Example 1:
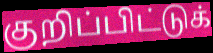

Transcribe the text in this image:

குறிப்பிட்டுக்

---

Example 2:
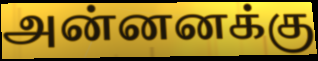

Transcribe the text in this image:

அன்னனக்கு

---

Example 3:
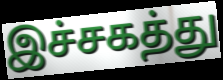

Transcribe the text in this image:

இச்சகத்து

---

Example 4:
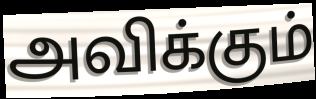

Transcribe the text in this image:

அவிக்கும்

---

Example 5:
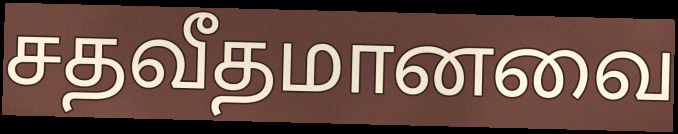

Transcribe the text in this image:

சதவீதமானவை